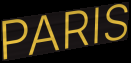
PARIS